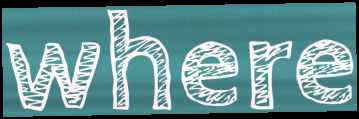
where